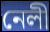
নেলী